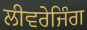
ਲੀਵਰੇਜਿੰਗ